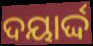
ଦୟାର୍ଦ୍ଦ